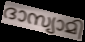
ദാസ്യാമി